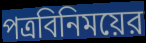
পত্রবিনিময়ের